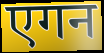
एगन